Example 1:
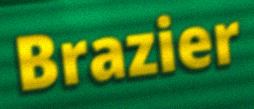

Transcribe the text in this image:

Brazier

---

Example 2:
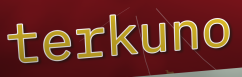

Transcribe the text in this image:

terkuno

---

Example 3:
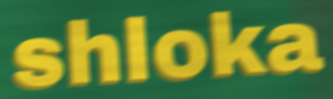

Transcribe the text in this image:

shloka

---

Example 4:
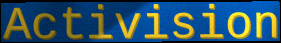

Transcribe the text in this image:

Activision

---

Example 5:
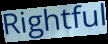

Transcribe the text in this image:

Rightful